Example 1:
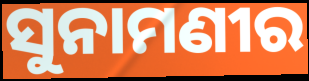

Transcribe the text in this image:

ସୁନାମଣୀର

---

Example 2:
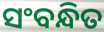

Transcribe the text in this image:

ସଂବନ୍ଧିତ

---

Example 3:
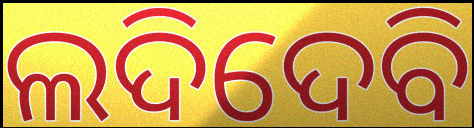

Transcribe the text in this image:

ଲଦିଦେବି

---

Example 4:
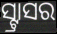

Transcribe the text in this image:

ସ୍ଟ୍ରାସର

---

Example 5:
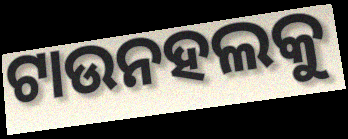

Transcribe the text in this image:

ଟାଉନହଲକୁ